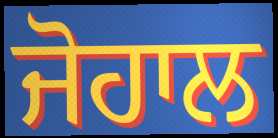
ਜੋਹਾਲ